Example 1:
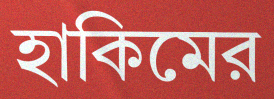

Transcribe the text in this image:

হাকিমের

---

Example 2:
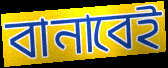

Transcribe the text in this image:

বানাবেই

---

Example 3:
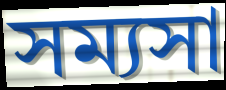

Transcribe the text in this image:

সম্যসা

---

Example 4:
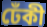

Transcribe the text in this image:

ঢেঁকী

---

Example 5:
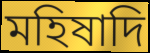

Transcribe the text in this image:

মহিষাদি